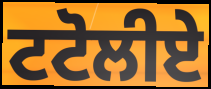
ਟਟੋਲੀਏ